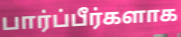
பார்ப்பீர்களாக